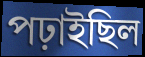
পঢ়াইছিল